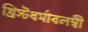
খ্রিস্টধর্মাবলম্বী